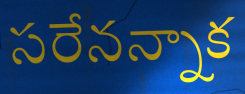
సరేనన్నాక